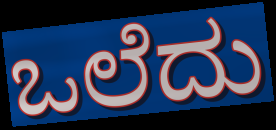
ಒಲೆದು